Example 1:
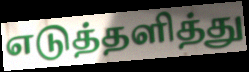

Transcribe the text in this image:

எடுத்தளித்து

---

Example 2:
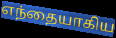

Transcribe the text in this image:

எந்தையாகிய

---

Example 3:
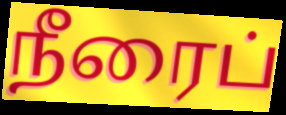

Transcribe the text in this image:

நீரைப்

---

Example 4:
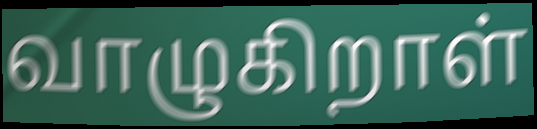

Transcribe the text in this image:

வாழுகிறாள்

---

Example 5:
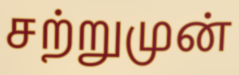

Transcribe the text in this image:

சற்றுமுன்